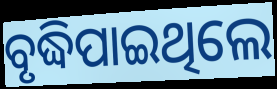
ବୃଦ୍ଧିପାଇଥିଲେ